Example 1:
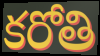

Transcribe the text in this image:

కరోతి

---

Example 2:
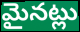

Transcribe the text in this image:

మైనట్లు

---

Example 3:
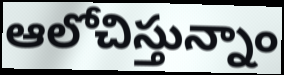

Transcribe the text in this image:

ఆలోచిస్తున్నాం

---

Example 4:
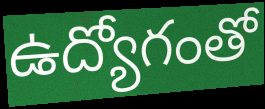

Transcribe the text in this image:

ఉద్యోగంతో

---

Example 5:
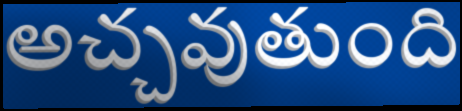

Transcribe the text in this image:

అచ్చవుతుంది